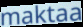
maktaa